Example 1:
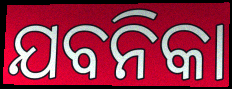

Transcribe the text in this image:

ଯବନିକା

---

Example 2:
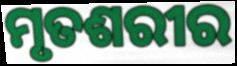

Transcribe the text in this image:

ମୃତଶରୀର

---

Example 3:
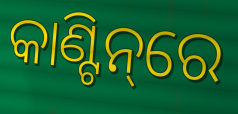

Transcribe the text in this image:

କାଣ୍ଟିନ୍‌ରେ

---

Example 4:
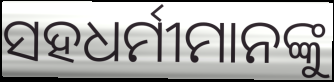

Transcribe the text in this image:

ସହଧର୍ମୀମାନଙ୍କୁ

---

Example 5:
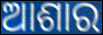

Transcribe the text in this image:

ଆଶାର